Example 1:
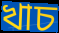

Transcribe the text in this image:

খাচ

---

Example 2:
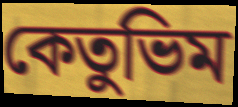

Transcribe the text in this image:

কেতুভিম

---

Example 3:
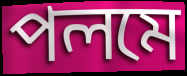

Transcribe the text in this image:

পলমে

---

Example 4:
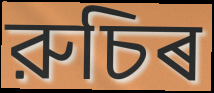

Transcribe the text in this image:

ৰুচিৰ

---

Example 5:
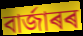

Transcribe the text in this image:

বাৰ্জাৰৰ